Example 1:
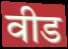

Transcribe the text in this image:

वीड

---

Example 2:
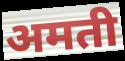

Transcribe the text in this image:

अमती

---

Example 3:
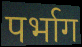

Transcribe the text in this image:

पर्भाग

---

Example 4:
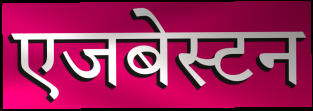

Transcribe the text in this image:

एजबेस्‍टन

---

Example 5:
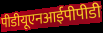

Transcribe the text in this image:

पीडीयूएनआईपीपीडी